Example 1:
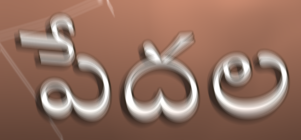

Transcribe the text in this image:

పేదల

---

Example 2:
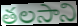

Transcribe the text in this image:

తలసాని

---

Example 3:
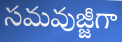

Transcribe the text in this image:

సమవుజ్జీగా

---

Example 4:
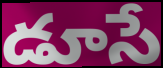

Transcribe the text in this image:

డూసే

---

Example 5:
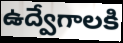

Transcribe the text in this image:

ఉద్వేగాలకి